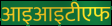
आइआइटीएफ